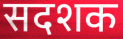
सदशक